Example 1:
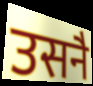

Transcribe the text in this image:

उसनै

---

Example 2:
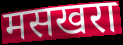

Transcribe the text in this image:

मसखरा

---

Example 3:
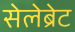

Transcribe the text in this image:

सेलेब्रेट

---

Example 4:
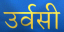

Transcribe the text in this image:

उर्वसी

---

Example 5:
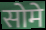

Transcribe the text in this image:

सोमे